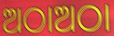
ଅଠାଅଠା